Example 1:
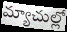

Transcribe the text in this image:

మ్యాచుల్లో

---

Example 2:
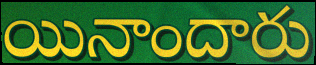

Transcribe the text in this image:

యినాందారు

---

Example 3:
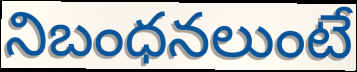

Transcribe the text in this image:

నిబంధనలుంటే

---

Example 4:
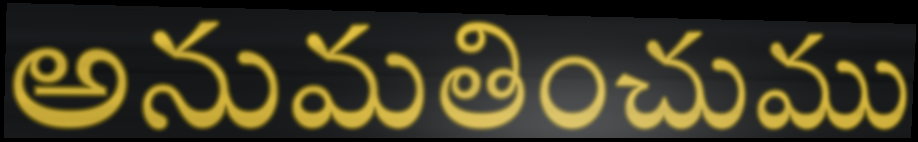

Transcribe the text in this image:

అనుమతించుము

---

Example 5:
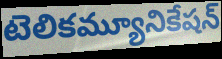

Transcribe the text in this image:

టెలికమ్యూనికేషన్